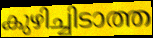
കുഴിച്ചിടാത്ത